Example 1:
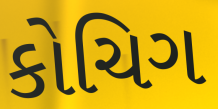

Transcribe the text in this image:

કોચિગ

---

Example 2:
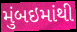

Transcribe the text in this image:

મુંબઇમાંથી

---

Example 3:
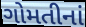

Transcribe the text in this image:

ગોમતીનાં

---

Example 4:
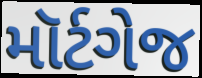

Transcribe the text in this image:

મૉર્ટગેજ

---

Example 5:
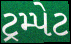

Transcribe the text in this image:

ટ્રમ્પેટ